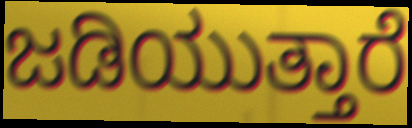
ಜಡಿಯುತ್ತಾರೆ